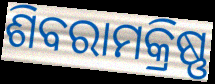
ଶିବରାମକ୍ରିଷ୍ଣ